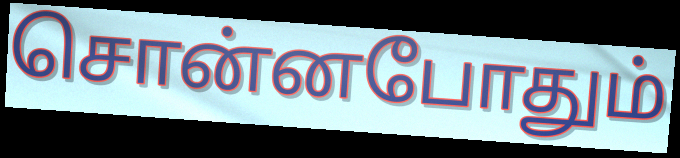
சொன்னபோதும்